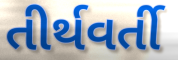
તીર્થવર્તી